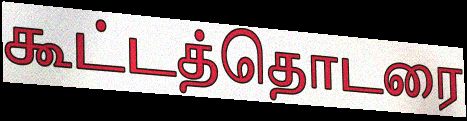
கூட்டத்தொடரை